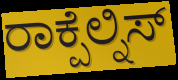
ರಾಕ್ಪೆಲ್ನಿಸ್